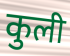
कुली